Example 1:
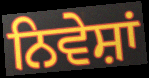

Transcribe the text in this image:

ਨਿਵੇਸ਼ਾਂ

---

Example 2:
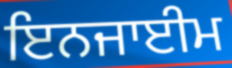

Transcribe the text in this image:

ਇਨਜਾਈਮ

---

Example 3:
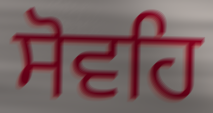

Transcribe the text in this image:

ਸੋਵਹਿ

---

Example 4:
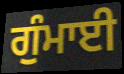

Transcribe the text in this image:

ਗੁੰਮਾਈ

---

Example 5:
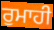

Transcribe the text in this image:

ਰੁਮਾਹੀ